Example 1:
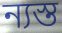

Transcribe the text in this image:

ন্যস্ত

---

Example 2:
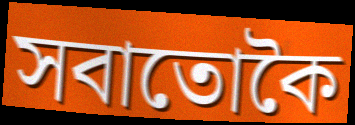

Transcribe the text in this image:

সবাতোকৈ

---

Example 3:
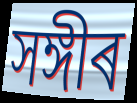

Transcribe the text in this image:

সঙ্গীৰ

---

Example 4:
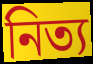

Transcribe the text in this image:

নিত্য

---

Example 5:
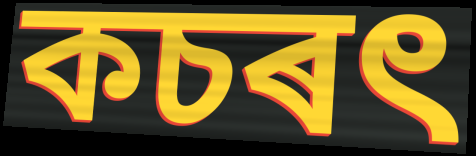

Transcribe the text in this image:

কচৰৎ